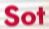
Sot